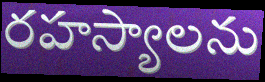
రహస్యాలను